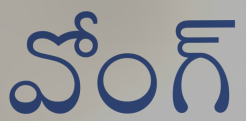
వోంగ్